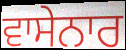
ਵਾਸੇਨਾਰ